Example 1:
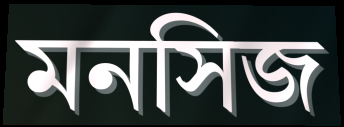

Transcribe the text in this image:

মনসিজ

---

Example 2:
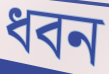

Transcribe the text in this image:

ধবন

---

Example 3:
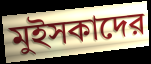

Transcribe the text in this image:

মুইসকাদের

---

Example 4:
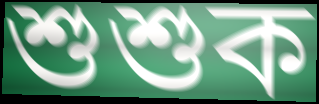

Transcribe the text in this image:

শুশুক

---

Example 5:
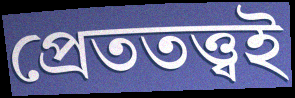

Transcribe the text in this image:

প্রেততত্ত্বই